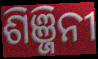
ଶିଞ୍ଜିନୀ